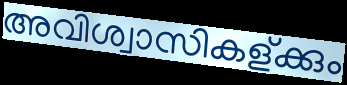
അവിശ്വാസികള്ക്കും